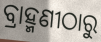
ବ୍ରାହ୍ମଣୀଠାରୁ